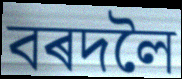
বৰদলৈ